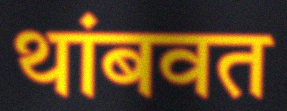
थांबवत